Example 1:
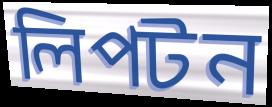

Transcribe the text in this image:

লিপটন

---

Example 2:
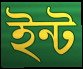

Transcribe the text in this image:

ইন্ট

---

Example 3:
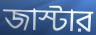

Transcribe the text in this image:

জাস্টার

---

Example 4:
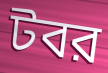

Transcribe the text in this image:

টবর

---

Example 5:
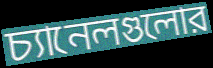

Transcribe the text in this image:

চ্যানেলগুলোর